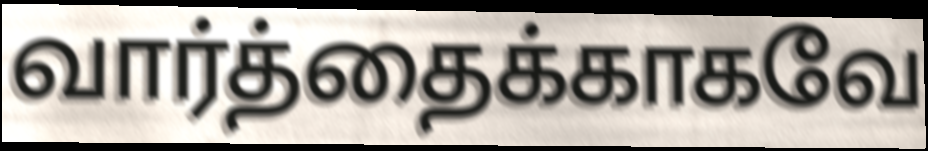
வார்த்தைக்காகவே